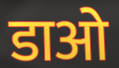
डाओ